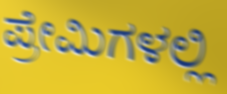
ಪ್ರೇಮಿಗಳಲ್ಲಿ